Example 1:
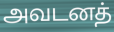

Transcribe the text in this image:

அவடனத்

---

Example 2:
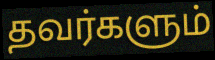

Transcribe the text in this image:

தவர்களும்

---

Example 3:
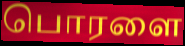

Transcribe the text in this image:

பொரளை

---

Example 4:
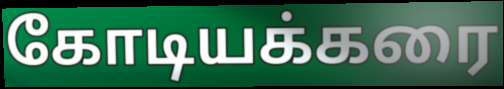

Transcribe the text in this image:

கோடியக்கரை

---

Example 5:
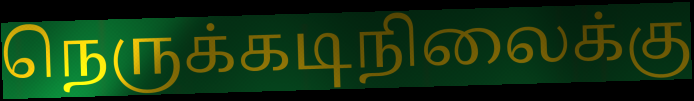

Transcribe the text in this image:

நெருக்கடிநிலைக்கு